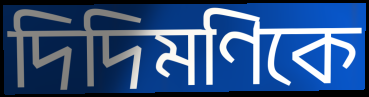
দিদিমণিকে